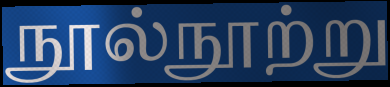
நூல்நூற்று